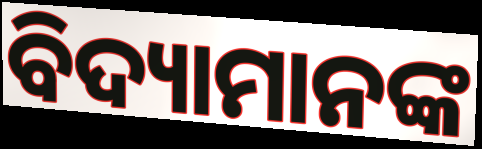
ବିଦ୍ୟାମାନଙ୍କ